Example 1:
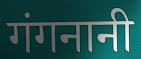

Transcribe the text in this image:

गंगनानी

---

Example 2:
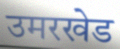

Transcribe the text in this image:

उमरखेड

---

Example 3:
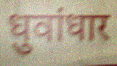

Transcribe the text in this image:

धुवांधार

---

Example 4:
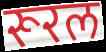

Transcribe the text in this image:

रूरल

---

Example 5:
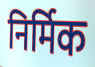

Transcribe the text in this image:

निर्मिक